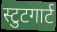
स्टुटगार्ट